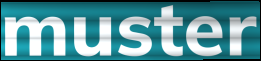
muster